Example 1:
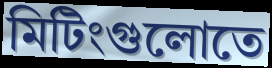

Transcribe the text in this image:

মিটিংগুলোতে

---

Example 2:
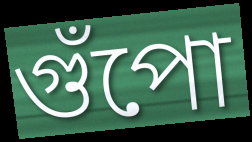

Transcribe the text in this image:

গুঁপো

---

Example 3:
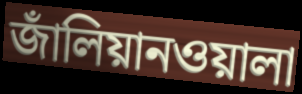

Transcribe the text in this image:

জাঁলিয়ানওয়ালা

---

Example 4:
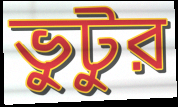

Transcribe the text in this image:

ভুটুর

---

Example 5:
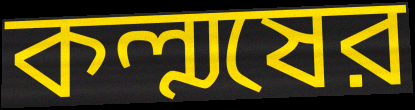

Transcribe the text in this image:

কল্মষের